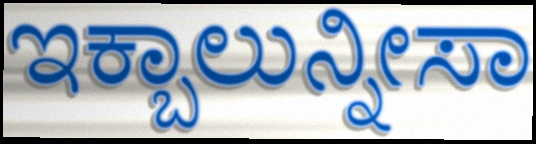
ಇಕ್ಬಾಲುನ್ನೀಸಾ